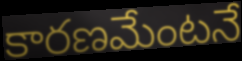
కారణమేంటనే